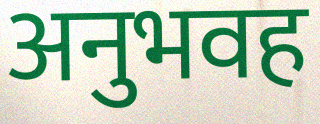
अनुभवह